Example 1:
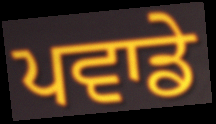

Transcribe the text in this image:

ਪਵਾਡੇ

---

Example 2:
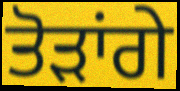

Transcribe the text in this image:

ਤੋੜਾਂਗੇ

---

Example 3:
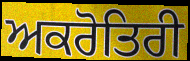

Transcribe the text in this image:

ਅਕਰੋਤਿਰੀ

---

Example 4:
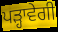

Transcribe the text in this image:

ਪੜ੍ਹਾਵੇਗੀ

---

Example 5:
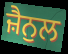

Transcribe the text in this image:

ਜ਼ੈਨੁਲ